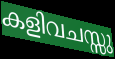
കളിവചസ്സു